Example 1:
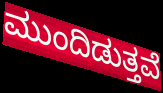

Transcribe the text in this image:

ಮುಂದಿಡುತ್ತವೆ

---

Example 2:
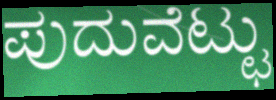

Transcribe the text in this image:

ಪುದುವೆಟ್ಟು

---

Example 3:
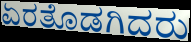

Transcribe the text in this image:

ಏರತೊಡಗಿದರು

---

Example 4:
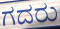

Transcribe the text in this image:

ಗದರು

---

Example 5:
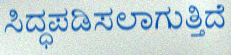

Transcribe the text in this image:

ಸಿದ್ಧಪಡಿಸಲಾಗುತ್ತಿದೆ